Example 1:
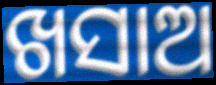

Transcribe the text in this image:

ଖସାଅ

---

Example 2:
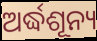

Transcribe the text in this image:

ଅର୍ଦ୍ଧଶୂନ୍ୟ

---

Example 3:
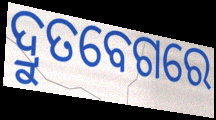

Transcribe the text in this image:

ଦ୍ରୁତବେଗରେ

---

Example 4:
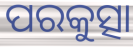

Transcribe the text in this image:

ପରକୁତ୍ସା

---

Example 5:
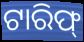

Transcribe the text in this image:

ଟାରିଫ୍